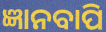
ଜ୍ଞାନବାପି